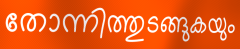
തോന്നിത്തുടങ്ങുകയും